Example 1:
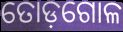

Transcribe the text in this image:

ତୋଡ଼ଗୋଳ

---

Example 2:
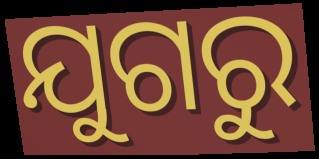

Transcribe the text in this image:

ଯୁଗରୁ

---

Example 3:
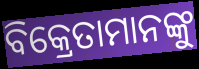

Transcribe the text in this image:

ବିକ୍ରେତାମାନଙ୍କୁ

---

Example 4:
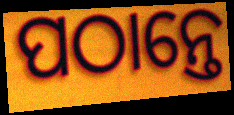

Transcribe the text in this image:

ପଠାନ୍ତେ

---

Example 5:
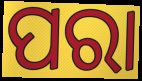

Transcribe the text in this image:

ପରା